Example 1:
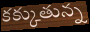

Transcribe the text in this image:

కక్కుతున్న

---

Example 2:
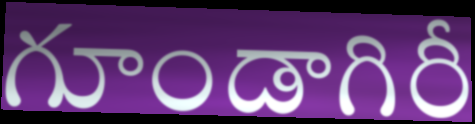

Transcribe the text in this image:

గూండాగిరీ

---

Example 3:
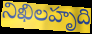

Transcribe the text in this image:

నిఖిలహృది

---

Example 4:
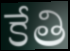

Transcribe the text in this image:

కేతి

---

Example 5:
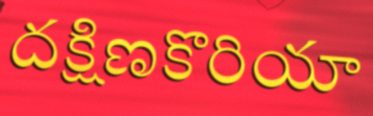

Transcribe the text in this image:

దక్షిణకొరియా